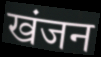
खंजन